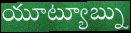
యూట్యూబ్ను